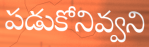
పడుకోనివ్వని